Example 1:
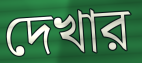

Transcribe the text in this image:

দেখার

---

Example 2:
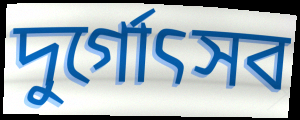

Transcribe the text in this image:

দুর্গোৎসব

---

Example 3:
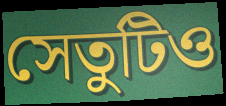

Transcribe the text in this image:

সেতুটিও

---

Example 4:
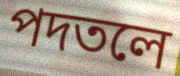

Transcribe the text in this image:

পদতলে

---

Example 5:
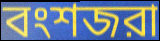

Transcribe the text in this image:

বংশজরা